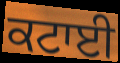
ਕਟਾਈ